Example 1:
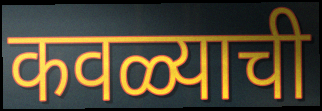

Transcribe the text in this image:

कवळ्याची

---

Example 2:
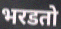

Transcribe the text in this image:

भरडतो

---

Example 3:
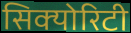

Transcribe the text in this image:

सिक्योरिटी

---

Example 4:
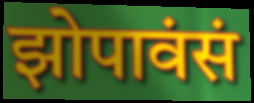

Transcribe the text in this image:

झोपावंसं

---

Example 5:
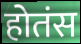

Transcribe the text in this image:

होतंस